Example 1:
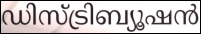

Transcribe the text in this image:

ഡിസ്ട്രിബ്യൂഷൻ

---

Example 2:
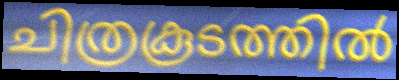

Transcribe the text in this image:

ചിത്രകൂടത്തിൽ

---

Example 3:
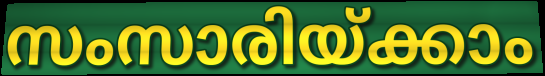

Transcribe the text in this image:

സംസാരിയ്ക്കാം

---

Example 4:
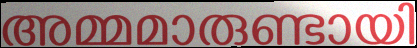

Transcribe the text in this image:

അമ്മമാരുണ്ടായി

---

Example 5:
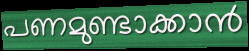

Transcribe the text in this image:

പണമുണ്ടാക്കാൻ